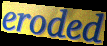
eroded